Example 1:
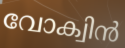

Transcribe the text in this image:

വോക്വിൻ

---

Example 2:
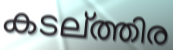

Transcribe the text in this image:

കടല്ത്തിര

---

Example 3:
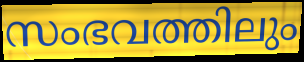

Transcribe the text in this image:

സംഭവത്തിലും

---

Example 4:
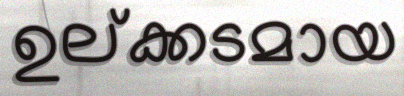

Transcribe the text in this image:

ഉല്ക്കടമായ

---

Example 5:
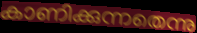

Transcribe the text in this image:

കാണിക്കുന്നതെന്നു